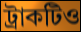
ট্রাকটিও